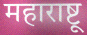
महाराष्टू